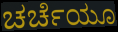
ಚರ್ಚೆಯೂ